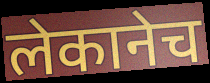
लेकानेच